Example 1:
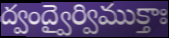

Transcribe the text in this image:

ద్వంద్వైర్విముక్తాః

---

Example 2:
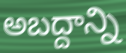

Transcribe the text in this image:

అబద్దాన్ని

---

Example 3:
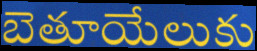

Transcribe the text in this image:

బెతూయేలుకు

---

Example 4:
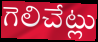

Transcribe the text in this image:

గెలిచేట్లు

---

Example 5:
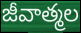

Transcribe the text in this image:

జీవాత్మల